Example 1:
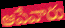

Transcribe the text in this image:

ఆపేవారు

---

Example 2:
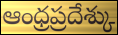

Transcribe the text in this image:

ఆంధ్రప్రదేశ్కు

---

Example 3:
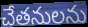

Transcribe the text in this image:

చేతనులను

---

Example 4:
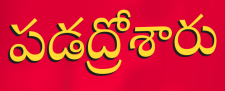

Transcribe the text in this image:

పడద్రోశారు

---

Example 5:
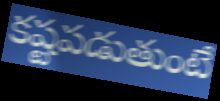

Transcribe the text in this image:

కష్టపడుతుంటే